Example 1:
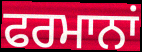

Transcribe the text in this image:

ਫਰਮਾਨਾਂ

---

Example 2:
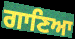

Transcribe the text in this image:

ਗਾਣਿਆ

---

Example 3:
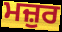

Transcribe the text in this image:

ਮਜ਼ੁਰ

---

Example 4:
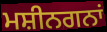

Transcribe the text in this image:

ਮਸ਼ੀਨਗਨਾਂ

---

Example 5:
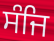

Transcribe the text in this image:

ਸੰਜਿ